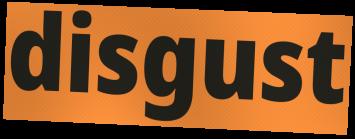
disgust